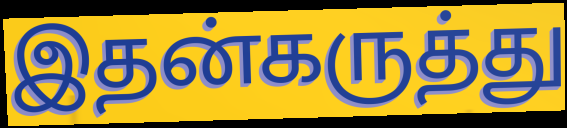
இதன்கருத்து